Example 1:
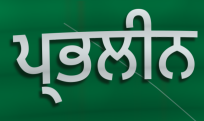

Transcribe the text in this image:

ਪ੍ਭਲੀਨ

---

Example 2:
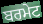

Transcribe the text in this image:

ਬਰਮੇਟ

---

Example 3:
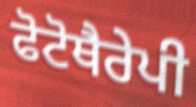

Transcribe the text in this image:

ਫੋਟੋਥੈਰੇਪੀ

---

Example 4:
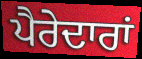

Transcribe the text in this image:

ਪੈਰੇਦਾਰਾਂ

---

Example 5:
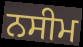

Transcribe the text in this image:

ਨਸੀਮ